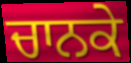
ਚਾਨਕੇ